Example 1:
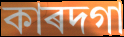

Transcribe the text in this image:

কাৰদগা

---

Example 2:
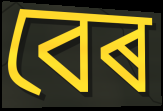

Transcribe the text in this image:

বেৰ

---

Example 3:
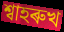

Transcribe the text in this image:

শ্বাহৰুখ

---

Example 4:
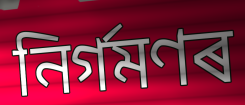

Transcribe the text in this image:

নিৰ্গমণৰ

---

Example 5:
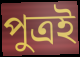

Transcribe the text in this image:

পুত্ৰই